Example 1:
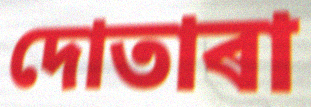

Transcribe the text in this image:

দোতাৰা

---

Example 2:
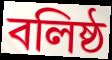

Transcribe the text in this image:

বলিষ্ঠ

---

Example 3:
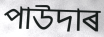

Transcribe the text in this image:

পাউদাৰ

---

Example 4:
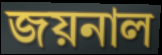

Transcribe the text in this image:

জয়নাল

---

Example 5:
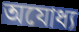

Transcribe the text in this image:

অযোধ্য